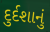
દુર્દશાનું